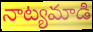
నాట్యమాడి